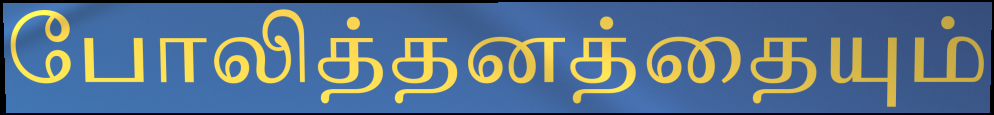
போலித்தனத்தையும்